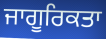
ਜਾਗੂਰਿਕਤਾ